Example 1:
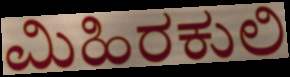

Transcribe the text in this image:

ಮಿಹಿರಕುಲಿ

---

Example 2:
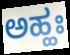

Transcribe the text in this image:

ಅಹ್ಹಃ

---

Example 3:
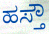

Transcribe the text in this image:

ಹಸ್ತೌ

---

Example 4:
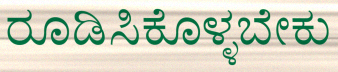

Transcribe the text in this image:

ರೂಡಿಸಿಕೊಳ್ಳಬೇಕು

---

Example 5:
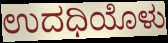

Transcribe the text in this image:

ಉದಧಿಯೊಳು